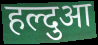
हल्दुआ